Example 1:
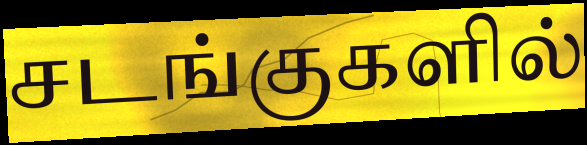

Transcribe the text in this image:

சடங்குகளில்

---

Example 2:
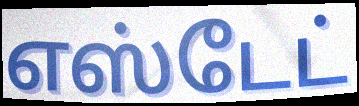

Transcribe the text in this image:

எஸ்டேட்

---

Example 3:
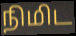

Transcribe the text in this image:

நிமிட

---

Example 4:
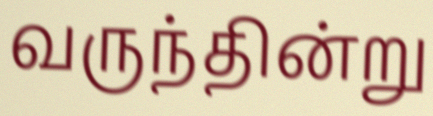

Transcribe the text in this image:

வருந்தின்று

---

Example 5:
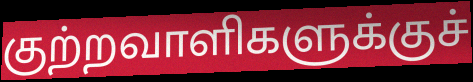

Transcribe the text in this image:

குற்றவாளிகளுக்குச்